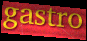
gastro